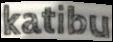
katibu